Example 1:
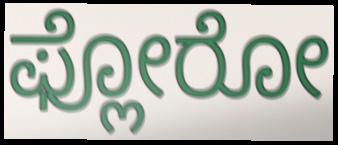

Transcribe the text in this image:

ಫ್ಲೋರೋ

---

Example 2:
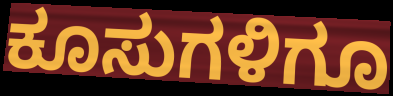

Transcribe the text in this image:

ಕೂಸುಗಳಿಗೂ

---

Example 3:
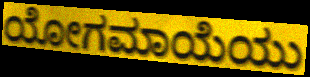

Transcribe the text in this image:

ಯೋಗಮಾಯೆಯು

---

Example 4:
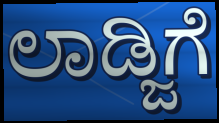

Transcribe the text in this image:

ಲಾಡ್ಜಿಗೆ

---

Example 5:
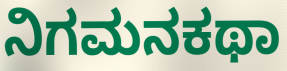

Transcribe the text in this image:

ನಿಗಮನಕಥಾ